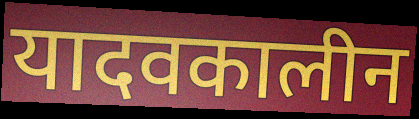
यादवकालीन